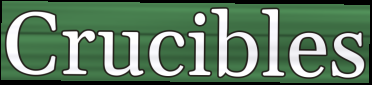
Crucibles